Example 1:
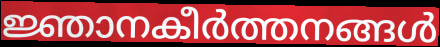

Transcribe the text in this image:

ജ്ഞാനകീർത്തനങ്ങൾ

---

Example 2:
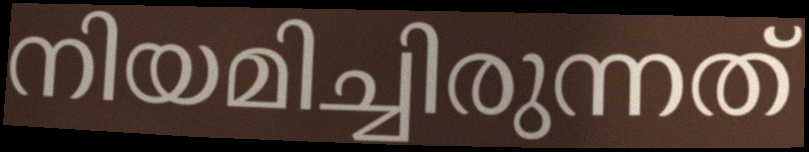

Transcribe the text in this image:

നിയമിച്ചിരുന്നത്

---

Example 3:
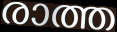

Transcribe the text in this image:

രാത്ത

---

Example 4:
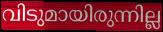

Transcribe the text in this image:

വിടുമായിരുന്നില്ല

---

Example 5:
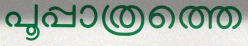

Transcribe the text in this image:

പൂപ്പാത്രത്തെ